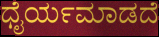
ಧೈರ್ಯಮಾಡದೆ